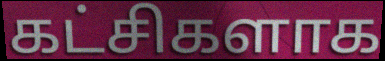
கட்சிகளாக